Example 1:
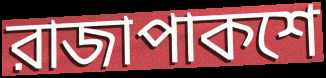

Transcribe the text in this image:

রাজাপাকশে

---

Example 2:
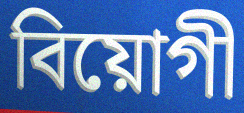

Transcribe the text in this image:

বিয়োগী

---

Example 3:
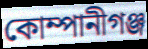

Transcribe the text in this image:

কোম্পানীগঞ্জ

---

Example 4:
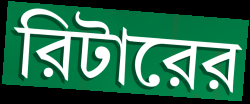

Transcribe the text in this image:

রিটারের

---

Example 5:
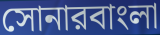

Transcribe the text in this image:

সোনারবাংলা